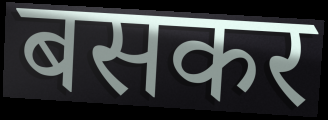
बसकर